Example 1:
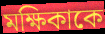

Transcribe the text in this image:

মক্ষিকাকে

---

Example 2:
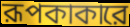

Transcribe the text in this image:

রূপকাকারে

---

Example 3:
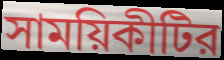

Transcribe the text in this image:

সাময়িকীটির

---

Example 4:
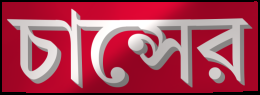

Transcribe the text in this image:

চান্সের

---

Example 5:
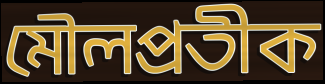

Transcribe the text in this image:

মৌলপ্রতীক